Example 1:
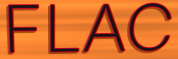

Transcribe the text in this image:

FLAC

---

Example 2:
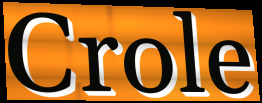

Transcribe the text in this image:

Crole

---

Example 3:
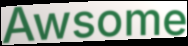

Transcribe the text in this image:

Awsome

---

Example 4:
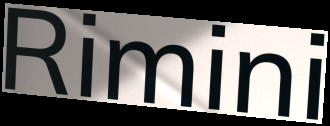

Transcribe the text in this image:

Rimini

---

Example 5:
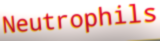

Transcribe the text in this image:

Neutrophils